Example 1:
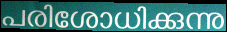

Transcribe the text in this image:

പരിശോധിക്കുന്നു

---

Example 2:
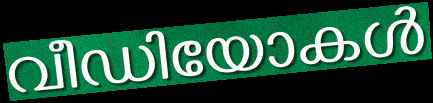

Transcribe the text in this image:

വീഡിയോകൾ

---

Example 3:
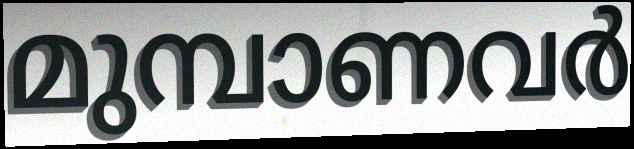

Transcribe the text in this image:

മുമ്പാണവർ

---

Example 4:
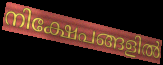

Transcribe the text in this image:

നിക്ഷേപങ്ങളിൽ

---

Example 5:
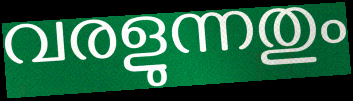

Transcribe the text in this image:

വരളുന്നതും